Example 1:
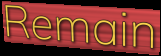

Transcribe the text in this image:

Remain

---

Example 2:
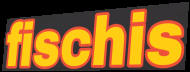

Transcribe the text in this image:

fischis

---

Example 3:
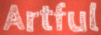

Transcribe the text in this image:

Artful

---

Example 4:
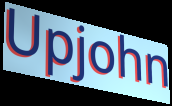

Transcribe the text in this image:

Upjohn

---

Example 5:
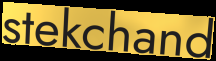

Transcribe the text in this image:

stekchand